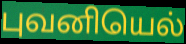
புவனியெல்